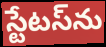
స్టేటస్‌ను